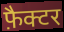
फ़ैक्टर